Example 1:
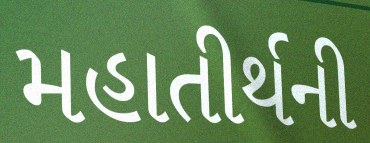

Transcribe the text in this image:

મહાતીર્થની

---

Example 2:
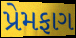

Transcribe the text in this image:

પ્રેમફાગ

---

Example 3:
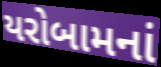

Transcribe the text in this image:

યરોબામનાં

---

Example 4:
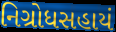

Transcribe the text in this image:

નિગ્રોધસહાયં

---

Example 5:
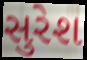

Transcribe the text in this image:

સુરેશ